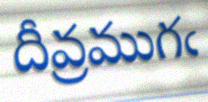
దీవ్రముగఁ